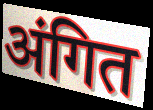
अंगित